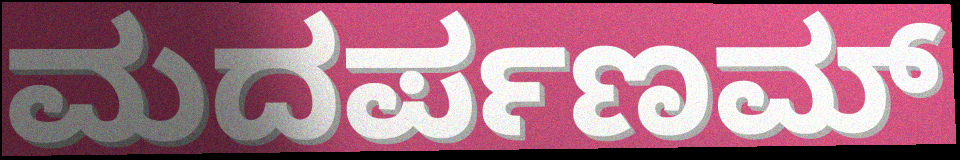
ಮದರ್ಪಣಮ್